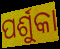
ପର୍ଶୁକା